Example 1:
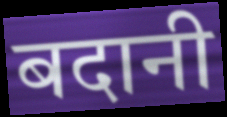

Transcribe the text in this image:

बदानी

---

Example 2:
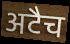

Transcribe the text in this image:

अटैच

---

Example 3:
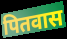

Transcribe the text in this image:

पितवास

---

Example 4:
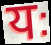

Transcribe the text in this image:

यः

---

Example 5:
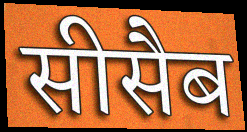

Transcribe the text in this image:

सीसैब